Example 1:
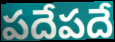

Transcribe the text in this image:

పదేపదే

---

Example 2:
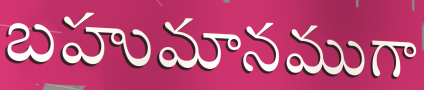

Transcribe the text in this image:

బహుమానముగా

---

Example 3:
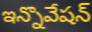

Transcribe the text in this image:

ఇన్నొవేషన్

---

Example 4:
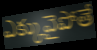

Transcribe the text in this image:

ఎక్కువైపోతే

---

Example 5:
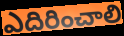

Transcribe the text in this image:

ఎదిరించాలి